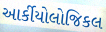
આર્કીયોલોજિકલ